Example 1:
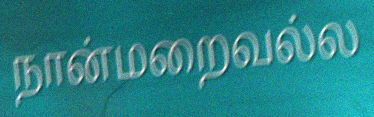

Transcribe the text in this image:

நான்மறைவல்ல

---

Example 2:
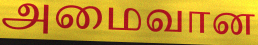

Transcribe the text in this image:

அமைவான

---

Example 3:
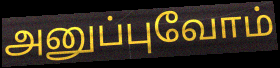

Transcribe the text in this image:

அனுப்புவோம்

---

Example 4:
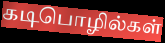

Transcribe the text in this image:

கடிபொழில்கள்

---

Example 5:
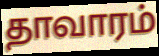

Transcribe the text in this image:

தாவாரம்